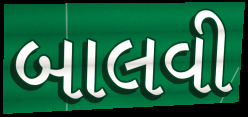
બાલવી